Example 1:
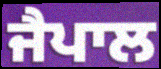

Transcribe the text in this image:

ਜੈਪਾਲ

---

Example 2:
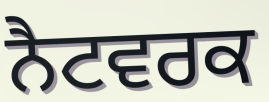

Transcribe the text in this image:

ਨੈਟਵਰਕ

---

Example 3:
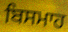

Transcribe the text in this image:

ਬਿਸਮਾਹ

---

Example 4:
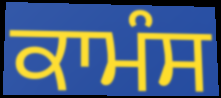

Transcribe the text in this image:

ਕਾਮੰਸ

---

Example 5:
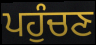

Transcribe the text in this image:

ਪਹੁੰਚਣ